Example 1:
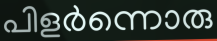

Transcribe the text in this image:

പിളർന്നൊരു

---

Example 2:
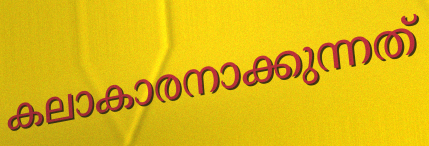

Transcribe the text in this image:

കലാകാരനാക്കുന്നത്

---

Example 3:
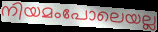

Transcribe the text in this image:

നിയമംപോലെയല്ല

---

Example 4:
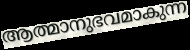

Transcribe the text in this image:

ആത്മാനുഭവമാകുന്ന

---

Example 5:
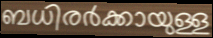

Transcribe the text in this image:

ബധിരർക്കായുള്ള